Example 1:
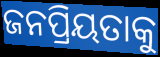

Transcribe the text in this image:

ଜନପ୍ରିୟତାକୁ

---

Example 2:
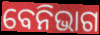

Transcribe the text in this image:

ବେନିଭାଗ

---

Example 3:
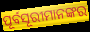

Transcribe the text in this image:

ପୂର୍ବସୂରୀମାନଙ୍କର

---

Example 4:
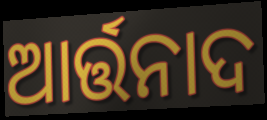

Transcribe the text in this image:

ଆର୍ତ୍ତନାଦ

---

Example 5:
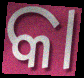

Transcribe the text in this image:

କା